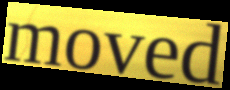
moved